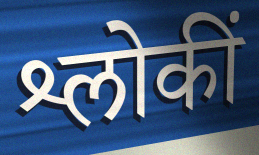
श्लोकीं